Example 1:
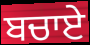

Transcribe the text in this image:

ਬਚਾਏ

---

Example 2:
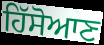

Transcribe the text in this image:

ਹਿੱਸੋਆਣ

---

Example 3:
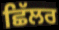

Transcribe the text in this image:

ਛਿੱਲਰ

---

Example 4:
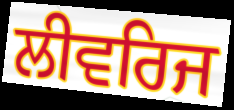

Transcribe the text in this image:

ਲੀਵਰਿਜ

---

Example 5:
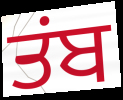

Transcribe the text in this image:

ਤਂਬ